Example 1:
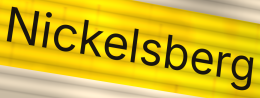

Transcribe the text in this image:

Nickelsberg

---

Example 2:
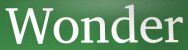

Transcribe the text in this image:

Wonder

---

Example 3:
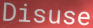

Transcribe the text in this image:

Disuse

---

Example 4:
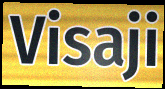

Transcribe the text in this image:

Visaji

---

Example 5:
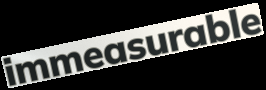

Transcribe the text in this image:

immeasurable